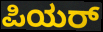
ಪಿಯರ್